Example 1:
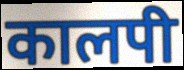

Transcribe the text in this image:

कालपी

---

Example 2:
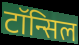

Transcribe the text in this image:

टॉन्सिल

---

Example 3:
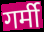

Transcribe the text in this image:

गर्मी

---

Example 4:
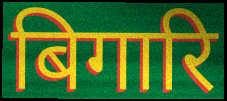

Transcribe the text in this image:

बिगारि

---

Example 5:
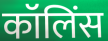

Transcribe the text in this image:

कॉलिंस